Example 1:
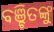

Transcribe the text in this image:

ବଞ୍ଚିତଙ୍କୁ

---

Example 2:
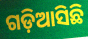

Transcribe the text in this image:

ଗଡ଼ିଆସିଛି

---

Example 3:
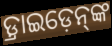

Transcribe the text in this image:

ଡ଼୍ରାଇଡ଼େନ୍‌ଙ୍କ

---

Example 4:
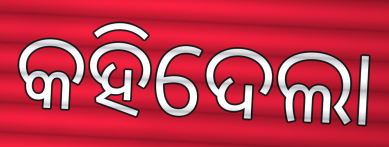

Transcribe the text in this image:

କହିଦେଲା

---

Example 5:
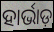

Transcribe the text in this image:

ହାର୍ଭାଡ଼